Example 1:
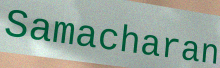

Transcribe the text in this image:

Samacharan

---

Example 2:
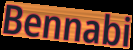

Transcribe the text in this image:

Bennabi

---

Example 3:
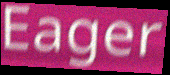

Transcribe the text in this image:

Eager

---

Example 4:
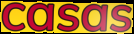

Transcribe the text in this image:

casas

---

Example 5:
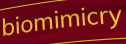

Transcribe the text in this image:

biomimicry